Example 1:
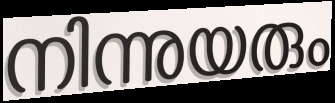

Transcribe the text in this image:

നിന്നുയരും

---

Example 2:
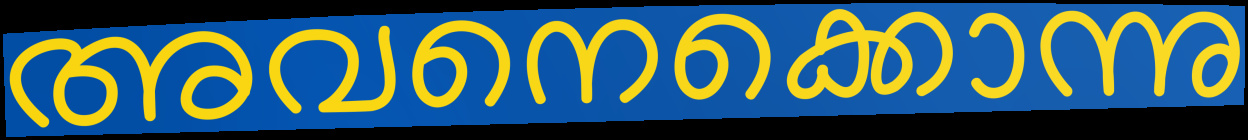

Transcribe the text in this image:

അവനെക്കൊന്നു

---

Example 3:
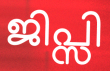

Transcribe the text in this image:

ജിപ്സി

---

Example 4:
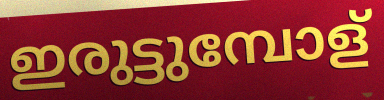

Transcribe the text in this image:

ഇരുട്ടുമ്പോള്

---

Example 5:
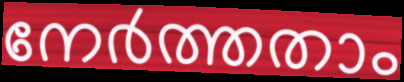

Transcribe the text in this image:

നേർത്തതാം